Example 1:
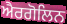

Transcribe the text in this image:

ਐਰਗੋਲਿਨ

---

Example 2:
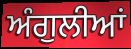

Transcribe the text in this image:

ਅੰਗੁਲੀਆਂ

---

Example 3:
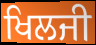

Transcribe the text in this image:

ਖਿਲਜੀ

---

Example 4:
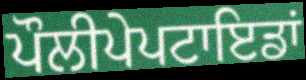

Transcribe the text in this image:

ਪੌਲੀਪੇਪਟਾਇਡਾਂ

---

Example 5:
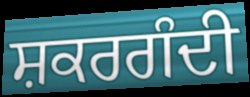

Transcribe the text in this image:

ਸ਼ਕਰਗੰਦੀ